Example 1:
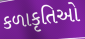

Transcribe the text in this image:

કળાકૃતિઓ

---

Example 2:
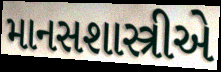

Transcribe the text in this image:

માનસશાસ્ત્રીએ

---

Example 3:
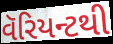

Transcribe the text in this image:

વૅરિયન્ટથી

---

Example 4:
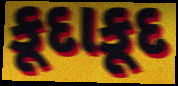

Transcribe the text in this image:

કૂદાકૂદ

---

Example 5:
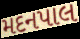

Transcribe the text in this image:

મદનપાલ